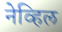
नेव्हिल